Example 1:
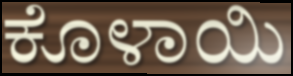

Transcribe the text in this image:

ಕೊಳಾಯಿ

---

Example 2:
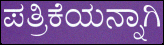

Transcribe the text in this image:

ಪತ್ರಿಕೆಯನ್ನಾಗಿ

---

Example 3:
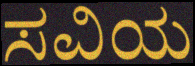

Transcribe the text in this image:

ಸವಿಯ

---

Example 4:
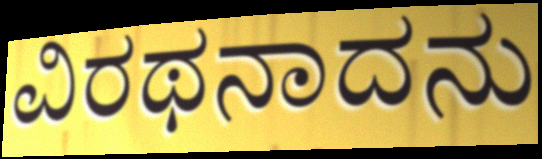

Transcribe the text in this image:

ವಿರಥನಾದನು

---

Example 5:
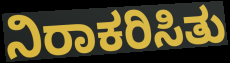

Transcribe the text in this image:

ನಿರಾಕರಿಸಿತು